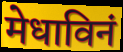
मेधाविनं